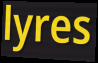
lyres